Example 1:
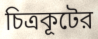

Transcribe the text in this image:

চিত্রকূটের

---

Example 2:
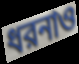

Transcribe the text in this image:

ধরনাও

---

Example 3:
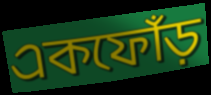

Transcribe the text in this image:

একফোঁড়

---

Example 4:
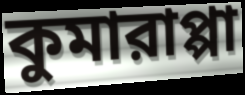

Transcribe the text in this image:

কুমারাপ্পা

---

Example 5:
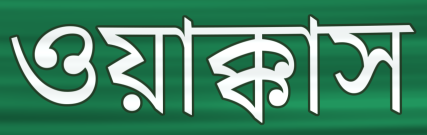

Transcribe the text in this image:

ওয়াক্কাস